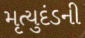
મૃત્યુદંડની